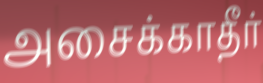
அசைக்காதீர்